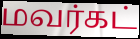
மவர்கட்